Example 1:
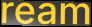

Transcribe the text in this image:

ream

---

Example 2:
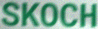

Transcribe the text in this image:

SKOCH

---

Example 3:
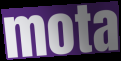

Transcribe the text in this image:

mota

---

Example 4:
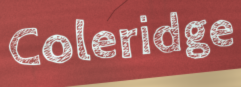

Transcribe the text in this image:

Coleridge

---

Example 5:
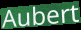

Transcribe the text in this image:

Aubert